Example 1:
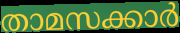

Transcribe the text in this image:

താമസക്കാർ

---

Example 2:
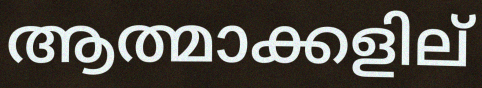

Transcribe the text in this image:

ആത്മാക്കളില്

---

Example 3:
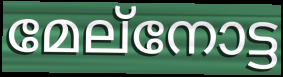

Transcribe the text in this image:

മേല്നോട്ട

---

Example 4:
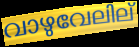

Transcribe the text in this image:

വാഴുവേലില്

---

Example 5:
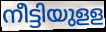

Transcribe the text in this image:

നീട്ടിയുളള